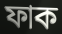
ফাক